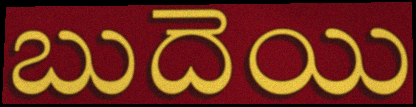
బుదెయి